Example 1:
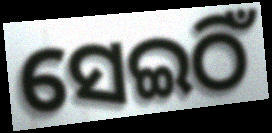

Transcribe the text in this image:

ସେଇଠିଁ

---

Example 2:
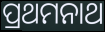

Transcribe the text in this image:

ପ୍ରଥମନାଥ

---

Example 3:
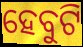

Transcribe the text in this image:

ହେବୁଟି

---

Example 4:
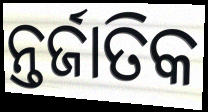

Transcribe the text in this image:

ନ୍ତର୍ଜାତିକ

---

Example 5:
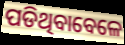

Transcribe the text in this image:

ପଡିଥିବାବେଳେ